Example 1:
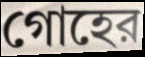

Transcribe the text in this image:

গোহের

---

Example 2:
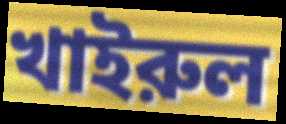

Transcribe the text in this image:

খাইরুল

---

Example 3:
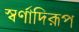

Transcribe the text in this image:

স্বর্ণাদিরূপ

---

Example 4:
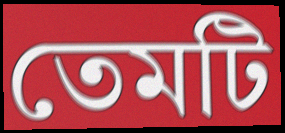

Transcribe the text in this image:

তেমটি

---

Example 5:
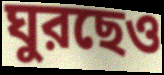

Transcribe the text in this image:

ঘুরছেও